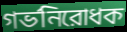
গর্ভনিরোধক